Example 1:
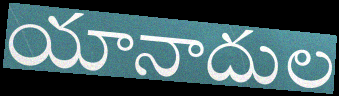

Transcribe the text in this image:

యానాదుల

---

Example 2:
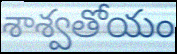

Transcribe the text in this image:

శాశ్వతోయం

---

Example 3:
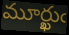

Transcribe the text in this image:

మూర్ఖుఁ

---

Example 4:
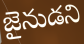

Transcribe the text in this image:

జైనుడని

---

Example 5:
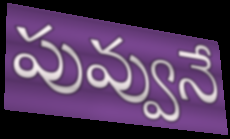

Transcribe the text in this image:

పువ్వునే